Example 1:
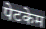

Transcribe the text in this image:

पेटकेम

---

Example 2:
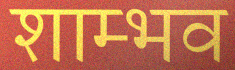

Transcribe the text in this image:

शाम्भव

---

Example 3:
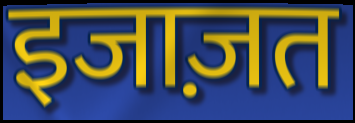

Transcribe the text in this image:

इजाज़त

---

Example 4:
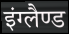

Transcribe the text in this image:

इंग्‍लैण्‍ड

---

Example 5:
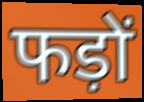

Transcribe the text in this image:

फड़ों